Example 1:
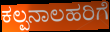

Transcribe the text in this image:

ಕಲ್ಪನಾಲಹರಿಗೆ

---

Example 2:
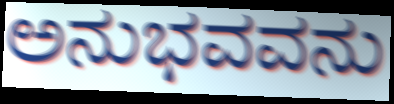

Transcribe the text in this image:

ಅನುಭವವನು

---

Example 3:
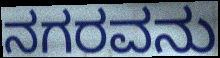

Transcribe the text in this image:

ನಗರವನು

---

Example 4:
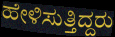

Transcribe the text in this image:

ಹೇಳಿಸುತ್ತಿದ್ದರು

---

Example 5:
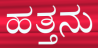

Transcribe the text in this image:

ಹತ್ತನು